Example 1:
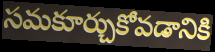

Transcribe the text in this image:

సమకూర్చుకోవడానికి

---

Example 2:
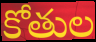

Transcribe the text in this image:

కోతుల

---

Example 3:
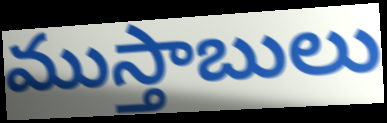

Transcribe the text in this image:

ముస్తాబులు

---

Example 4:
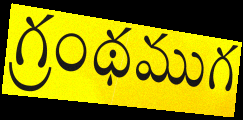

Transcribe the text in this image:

గ్రంథముగ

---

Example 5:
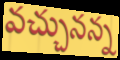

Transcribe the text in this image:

వచ్చునన్న